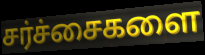
சர்ச்சைகளை